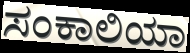
ಸಂಕಾಲಿಯಾ